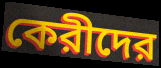
কেরীদের